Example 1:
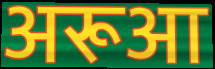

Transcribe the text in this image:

अरूआ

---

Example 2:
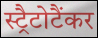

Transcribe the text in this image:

स्ट्रैटोटैंकर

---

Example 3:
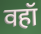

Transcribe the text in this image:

वहॉ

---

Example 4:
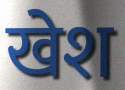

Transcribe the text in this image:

खेश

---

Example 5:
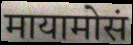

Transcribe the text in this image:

मायामोसं